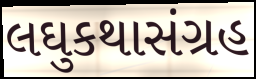
લઘુકથાસંગ્રહ